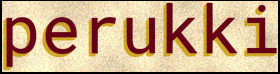
perukki